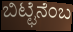
ಬಿಟ್ಟೆನೆಂಬ